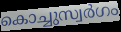
കൊച്ചുസ്വർഗം